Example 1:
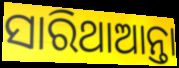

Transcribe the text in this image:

ସାରିଥାଆନ୍ତା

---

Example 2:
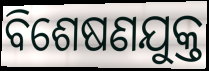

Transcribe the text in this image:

ବିଶେଷଣଯୁକ୍ତ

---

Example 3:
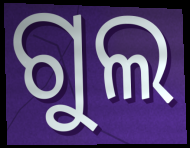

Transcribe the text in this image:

ଗୁଲ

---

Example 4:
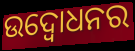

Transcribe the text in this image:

ଉଦ୍ବୋଧନର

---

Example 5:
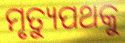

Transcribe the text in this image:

ମୃତ୍ୟୁପଥକୁ